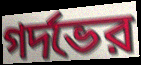
গর্দভের